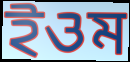
ইওম